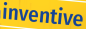
inventive